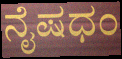
ನೈಷಧಂ